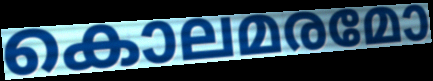
കൊലമരമോ